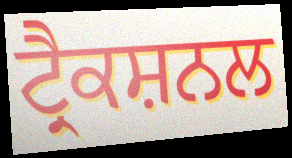
ਟ੍ਰੈਕਸ਼ਨਲ